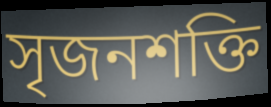
সৃজনশক্তি